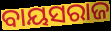
ବାୟସରାଜ